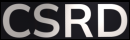
CSRD